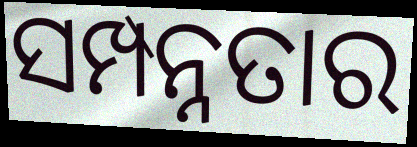
ସମ୍ପନ୍ନତାର